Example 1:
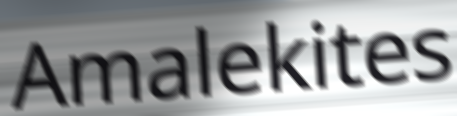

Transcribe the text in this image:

Amalekites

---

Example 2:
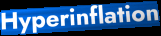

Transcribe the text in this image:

Hyperinflation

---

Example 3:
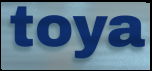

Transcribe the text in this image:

toya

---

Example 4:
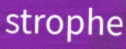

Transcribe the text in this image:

strophe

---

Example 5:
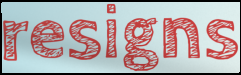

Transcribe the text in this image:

resigns